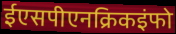
ईएसपीएनक्रिकइंफो